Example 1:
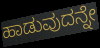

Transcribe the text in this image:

ಹಾಡುವುದನ್ನೇ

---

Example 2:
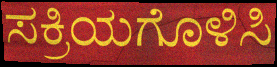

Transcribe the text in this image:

ಸಕ್ರಿಯಗೊಳಿಸಿ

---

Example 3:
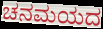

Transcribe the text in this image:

ಚನಮಯದ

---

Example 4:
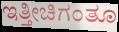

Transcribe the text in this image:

ಇತ್ತೀಚಿಗಂತೂ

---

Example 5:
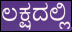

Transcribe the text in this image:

ಲಕ್ಷದಲ್ಲಿ